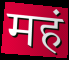
महं